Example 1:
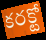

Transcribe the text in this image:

కరక్టో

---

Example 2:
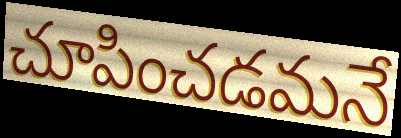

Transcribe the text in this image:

చూపించడమనే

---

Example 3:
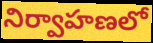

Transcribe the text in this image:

నిర్వాహణలో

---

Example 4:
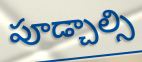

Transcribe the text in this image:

పూడ్చాల్సి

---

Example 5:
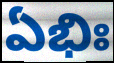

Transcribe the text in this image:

ఏభిః